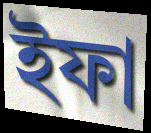
ইফা